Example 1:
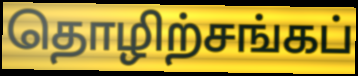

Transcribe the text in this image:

தொழிற்சங்கப்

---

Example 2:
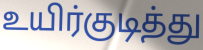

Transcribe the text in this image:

உயிர்குடித்து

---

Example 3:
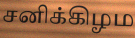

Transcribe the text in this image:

சனிக்கிழம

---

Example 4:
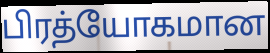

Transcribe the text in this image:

பிரத்யோகமான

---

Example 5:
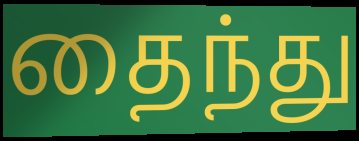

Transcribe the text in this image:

தைந்து